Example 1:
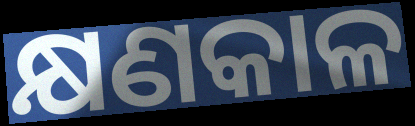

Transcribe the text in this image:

କ୍ଷଣକାଳ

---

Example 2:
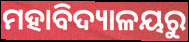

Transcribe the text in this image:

ମହାବିଦ୍ୟାଳୟରୁ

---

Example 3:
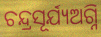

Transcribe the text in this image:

ଚନ୍ଦ୍ରସୂର୍ଯ୍ୟଅଗ୍ନି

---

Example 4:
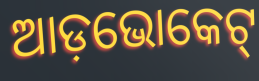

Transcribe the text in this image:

ଆଡ଼ଭୋକେଟ୍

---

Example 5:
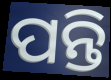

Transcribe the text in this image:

ପନ୍ତି